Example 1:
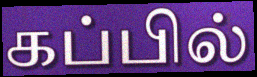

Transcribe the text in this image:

கப்பில்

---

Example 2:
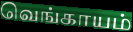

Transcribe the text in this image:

வெங்காயம்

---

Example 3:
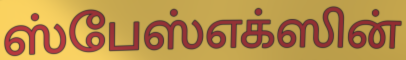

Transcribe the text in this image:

ஸ்பேஸ்எக்ஸின்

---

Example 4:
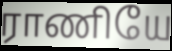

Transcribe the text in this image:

ராணியே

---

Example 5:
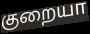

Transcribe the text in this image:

குறையா